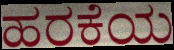
ಹರಕೆಯ